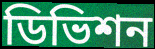
ডিভিশন